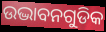
ଉଦ୍ଭାବନଗୁଡିକ